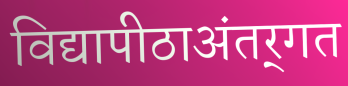
विद्यापीठाअंतर्गत